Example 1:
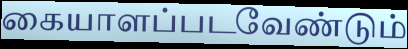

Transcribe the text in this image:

கையாளப்படவேண்டும்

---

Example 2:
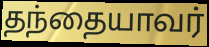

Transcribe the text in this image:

தந்தையாவர்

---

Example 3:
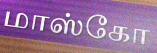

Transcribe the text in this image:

மாஸ்கோ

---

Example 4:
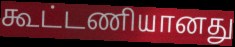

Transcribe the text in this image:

கூட்டணியானது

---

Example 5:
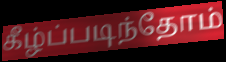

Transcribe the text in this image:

கீழ்ப்படிந்தோம்